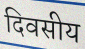
दिवसीय